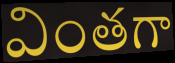
వింతగా